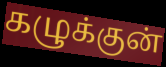
கழுக்குன்